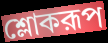
শ্লোকরূপ